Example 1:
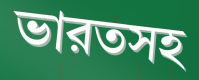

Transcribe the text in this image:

ভারতসহ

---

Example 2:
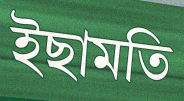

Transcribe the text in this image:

ইছামতি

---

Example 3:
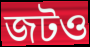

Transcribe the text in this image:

জটও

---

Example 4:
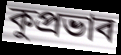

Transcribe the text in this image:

কুপ্রভাব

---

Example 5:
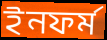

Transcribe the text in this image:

ইনফর্ম